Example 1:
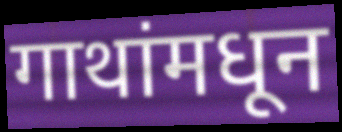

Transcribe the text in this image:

गाथांमधून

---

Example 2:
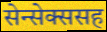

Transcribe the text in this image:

सेन्सेक्ससह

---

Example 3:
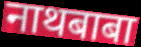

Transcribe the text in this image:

नाथबाबा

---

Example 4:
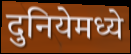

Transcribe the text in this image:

दुनियेमध्ये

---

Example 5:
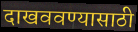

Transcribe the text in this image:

दाखववण्यासाठी